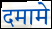
दमामे